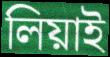
লিয়াই